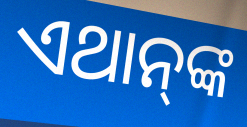
ଏଥାନ୍‍ଙ୍କ